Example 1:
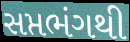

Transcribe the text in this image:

સપ્તભંગથી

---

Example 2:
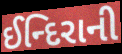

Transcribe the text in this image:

ઈન્દિરાની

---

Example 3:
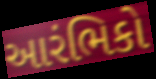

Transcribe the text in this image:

આરંભિકો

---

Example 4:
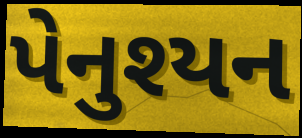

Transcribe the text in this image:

પેનુશ્યન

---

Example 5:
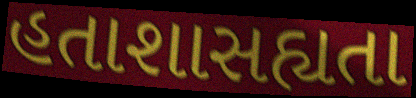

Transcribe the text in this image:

હતાશાસહ્યતા